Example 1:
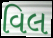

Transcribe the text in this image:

વિલ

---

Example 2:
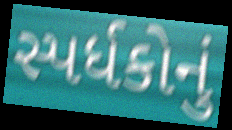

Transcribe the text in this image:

સ્પર્ધકોનું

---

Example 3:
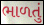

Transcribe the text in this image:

ભાળતું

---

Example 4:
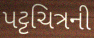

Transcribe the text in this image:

પટ્ટચિત્રની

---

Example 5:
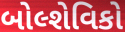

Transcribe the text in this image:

બોલ્શેવિકો